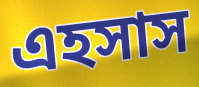
এহসাস